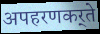
अपहरणकर्ते